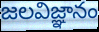
జలవిజ్ఞానం